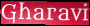
Gharavi